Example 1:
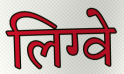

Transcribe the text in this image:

लिग्वे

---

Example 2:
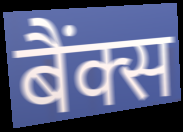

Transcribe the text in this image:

बैंक्‍स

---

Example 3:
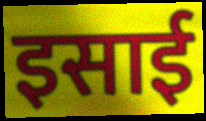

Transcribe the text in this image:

इसाई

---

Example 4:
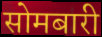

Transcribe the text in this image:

सोमबारी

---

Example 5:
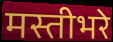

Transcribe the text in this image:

मस्तीभरे